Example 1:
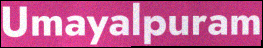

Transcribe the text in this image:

Umayalpuram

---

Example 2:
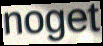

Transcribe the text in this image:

noget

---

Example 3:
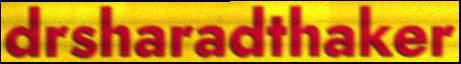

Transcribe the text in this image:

drsharadthaker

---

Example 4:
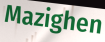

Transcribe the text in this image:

Mazighen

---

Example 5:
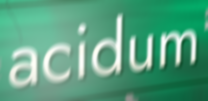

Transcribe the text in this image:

acidum